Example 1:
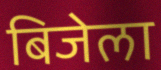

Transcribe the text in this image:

बिजेला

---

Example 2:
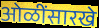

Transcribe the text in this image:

ओळींसारखे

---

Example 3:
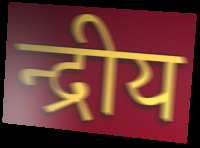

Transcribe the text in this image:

न्द्रीय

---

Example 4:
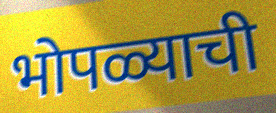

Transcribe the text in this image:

भोपळ्याची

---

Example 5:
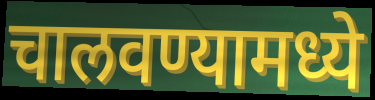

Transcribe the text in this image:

चालवण्यामध्ये